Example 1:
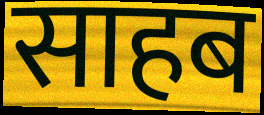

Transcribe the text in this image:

साहब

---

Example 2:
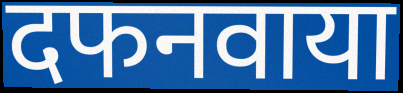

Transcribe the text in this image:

दफनवाया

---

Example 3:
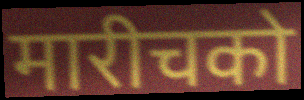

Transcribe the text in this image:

मारीचको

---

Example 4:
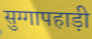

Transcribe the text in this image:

सुग्गापहाड़ी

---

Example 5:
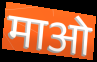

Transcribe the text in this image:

माओ